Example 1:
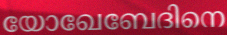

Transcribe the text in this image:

യോഖേബേദിനെ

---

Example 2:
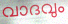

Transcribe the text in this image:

വാദവും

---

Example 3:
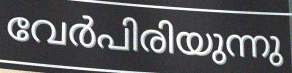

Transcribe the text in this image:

വേർപിരിയുന്നു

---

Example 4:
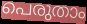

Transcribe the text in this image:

പെരുതാം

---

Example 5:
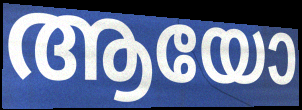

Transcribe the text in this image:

ആയോ